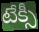
టేక్సీ